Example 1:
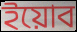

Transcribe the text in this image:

ইয়োব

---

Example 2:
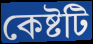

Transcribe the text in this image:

কেষ্টটি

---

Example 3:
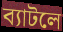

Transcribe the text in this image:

ব্যাটলে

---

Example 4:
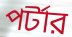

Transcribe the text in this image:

পর্টার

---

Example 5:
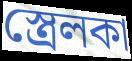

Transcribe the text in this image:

স্ত্রেলকা